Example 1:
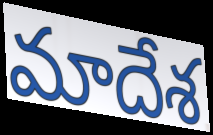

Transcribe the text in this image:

మాదేశ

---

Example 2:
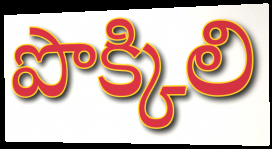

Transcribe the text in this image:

పొక్కిలి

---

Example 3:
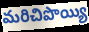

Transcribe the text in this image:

మరిచిపొయ్యి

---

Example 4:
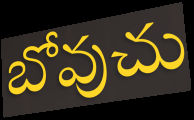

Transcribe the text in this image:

బోవుచు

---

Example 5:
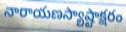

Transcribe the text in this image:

నారాయణస్యాష్టాక్షరం